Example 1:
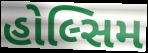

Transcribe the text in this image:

હોલ્સિમ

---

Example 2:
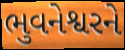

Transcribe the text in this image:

ભુવનેશ્વરને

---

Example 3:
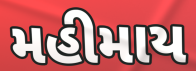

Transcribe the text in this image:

મહીમાય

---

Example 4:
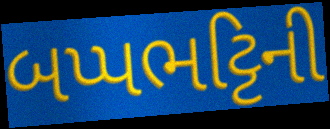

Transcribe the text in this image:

બપ્પભટ્ટિની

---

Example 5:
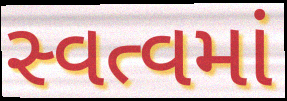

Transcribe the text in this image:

સ્વત્વમાં